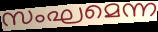
സംഘമെന്ന